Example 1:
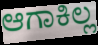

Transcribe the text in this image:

ಆಗಾಕಿಲ್ಲ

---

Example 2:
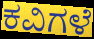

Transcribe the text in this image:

ಕವಿಗಳೆ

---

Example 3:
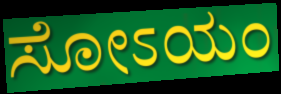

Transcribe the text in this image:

ಸೋಽಯಂ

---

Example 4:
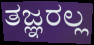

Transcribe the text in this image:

ತಜ್ಞರಲ್ಲ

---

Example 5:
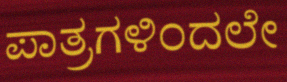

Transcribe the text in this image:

ಪಾತ್ರಗಳಿಂದಲೇ